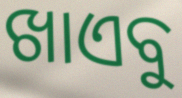
ଖାଏବୁ